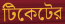
টিকেটের